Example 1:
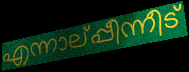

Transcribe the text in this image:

എന്നാല്പ്പീന്നീട്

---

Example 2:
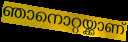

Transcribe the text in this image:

ഞാനൊറ്റയ്ക്കാണ്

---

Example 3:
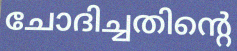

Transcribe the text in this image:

ചോദിച്ചതിന്റെ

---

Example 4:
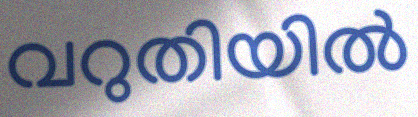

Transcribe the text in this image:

വറുതിയിൽ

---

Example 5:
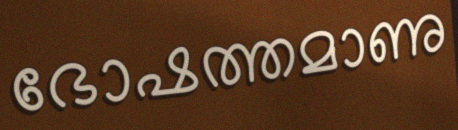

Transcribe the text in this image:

ഭോഷത്തമാണു